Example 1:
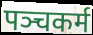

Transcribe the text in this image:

पञ्चकर्म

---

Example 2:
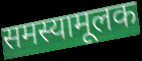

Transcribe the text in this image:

समस्यामूलक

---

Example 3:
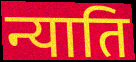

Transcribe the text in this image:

न्याति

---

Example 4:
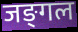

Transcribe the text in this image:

जङ्गल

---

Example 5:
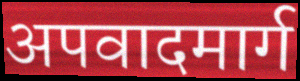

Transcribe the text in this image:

अपवादमार्ग